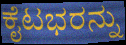
ಕೈಟಭರನ್ನು